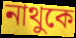
নাথুকে